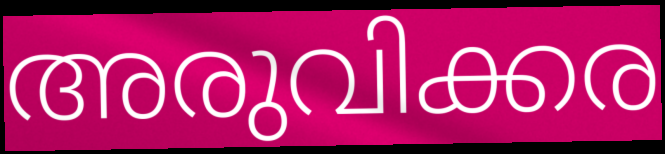
അരുവിക്കര